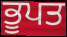
ਭੂਪਤ